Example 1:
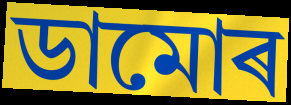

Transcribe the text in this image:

ডামোৰ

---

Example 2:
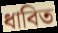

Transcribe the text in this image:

ধাবিত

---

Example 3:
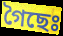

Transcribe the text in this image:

গৈছেঃ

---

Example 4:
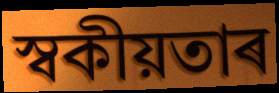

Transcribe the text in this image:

স্বকীয়তাৰ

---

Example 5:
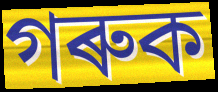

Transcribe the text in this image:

গৰুক